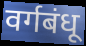
वर्गबंधू